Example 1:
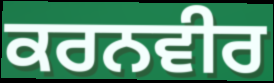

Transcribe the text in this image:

ਕਰਨਵੀਰ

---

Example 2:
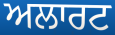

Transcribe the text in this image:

ਅਲਾਰਟ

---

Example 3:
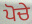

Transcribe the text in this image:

ਪੋਚੇ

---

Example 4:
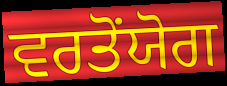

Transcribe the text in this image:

ਵਰਤੋਂਯੋਗ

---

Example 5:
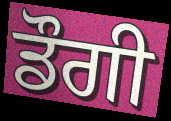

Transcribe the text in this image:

ਡੌਗੀ